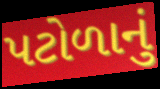
પટોળાનું